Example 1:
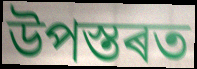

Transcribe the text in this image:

উপস্তৰত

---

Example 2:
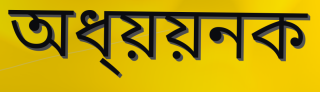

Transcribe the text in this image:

অধ্য়য়নক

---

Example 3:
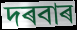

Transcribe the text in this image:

দৰবাৰ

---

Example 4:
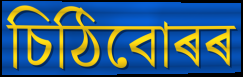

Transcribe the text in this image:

চিঠিবোৰৰ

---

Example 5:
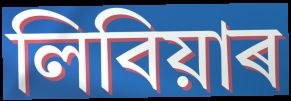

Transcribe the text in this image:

লিবিয়াৰ